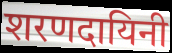
शरणदायिनी